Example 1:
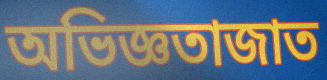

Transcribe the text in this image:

অভিজ্ঞতাজাত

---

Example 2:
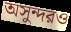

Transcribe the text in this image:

অসুন্দরও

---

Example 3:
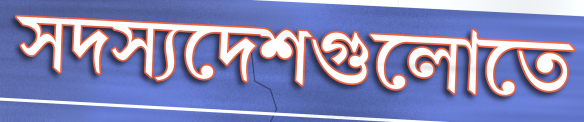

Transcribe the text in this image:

সদস্যদেশগুলোতে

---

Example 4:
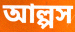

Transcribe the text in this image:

আল্পস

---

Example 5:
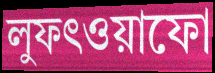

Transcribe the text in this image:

লুফৎওয়াফো